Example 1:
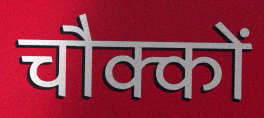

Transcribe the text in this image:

चौक्कों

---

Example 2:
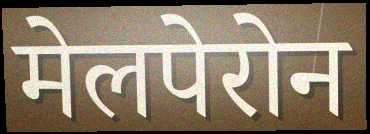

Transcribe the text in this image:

मेलपेरोन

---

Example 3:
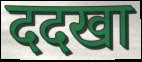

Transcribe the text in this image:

ददखा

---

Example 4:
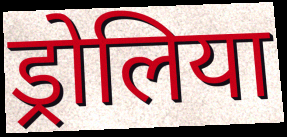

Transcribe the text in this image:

ड्रोलिया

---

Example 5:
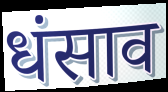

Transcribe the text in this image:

धंसाव